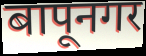
बापूनगर